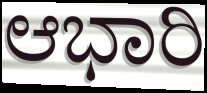
ಆಭಾರಿ